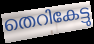
തെറികേട്ടു